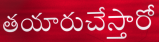
తయారుచేస్తారో